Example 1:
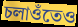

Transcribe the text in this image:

চলাওঁতেও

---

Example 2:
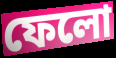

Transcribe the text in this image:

ফেলো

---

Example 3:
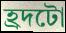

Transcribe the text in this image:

হ্ৰদটো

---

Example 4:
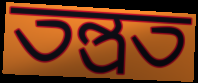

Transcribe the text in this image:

তন্ত্ৰত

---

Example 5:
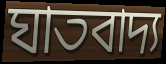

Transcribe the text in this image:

ঘাতবাদ্য